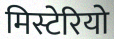
मिस्टेरियो